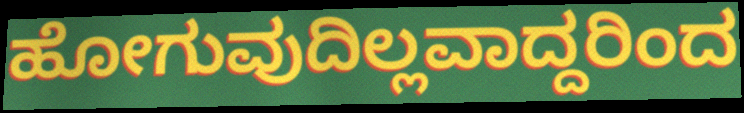
ಹೋಗುವುದಿಲ್ಲವಾದ್ದರಿಂದ